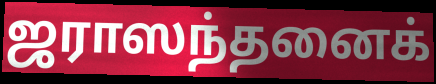
ஜராஸந்தனைக்